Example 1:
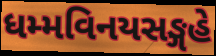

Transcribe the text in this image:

ધમ્મવિનયસઙ્ગહે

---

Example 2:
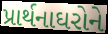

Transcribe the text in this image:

પ્રાર્થનાઘરોને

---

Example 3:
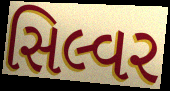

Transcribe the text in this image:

સિલ્વર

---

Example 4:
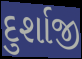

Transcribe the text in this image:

દુર્શાજી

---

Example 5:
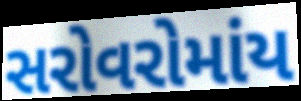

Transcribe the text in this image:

સરોવરોમાંય